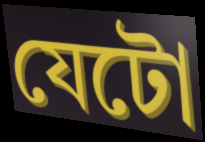
যেটো